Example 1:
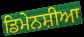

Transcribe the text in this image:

ਡਿਮੇਨਸ਼ੀਆ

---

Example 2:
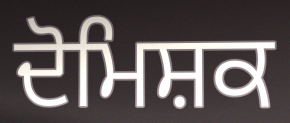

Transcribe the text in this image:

ਦੋਮਿਸ਼ਕ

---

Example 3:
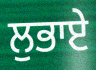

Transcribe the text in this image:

ਲੁਭਾਏ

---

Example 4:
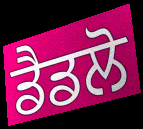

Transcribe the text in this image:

ਡੈਡਲੋ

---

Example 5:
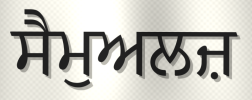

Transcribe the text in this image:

ਸੈਮੁਅਲਜ਼